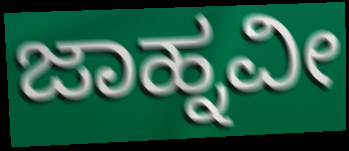
ಜಾಹ್ನವೀ